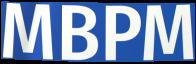
MBPM